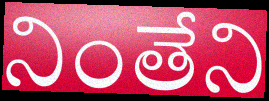
నింతేని